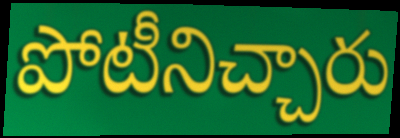
పోటీనిచ్చారు